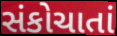
સંકોચાતાં